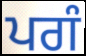
ਪਗੰ